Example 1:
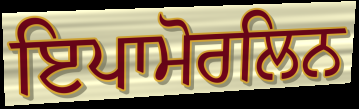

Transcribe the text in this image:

ਇਪਾਮੋਰਲਿਨ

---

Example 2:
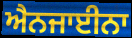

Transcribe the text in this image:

ਐਨਜਾਈਨਾ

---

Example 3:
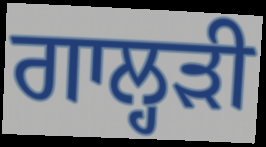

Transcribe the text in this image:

ਗਾਲ੍ਹੜੀ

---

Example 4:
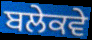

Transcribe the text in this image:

ਬਲੇਕਵੇ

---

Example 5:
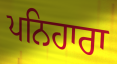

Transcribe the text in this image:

ਪਨਿਹਾਰਾ